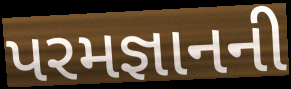
પરમજ્ઞાનની